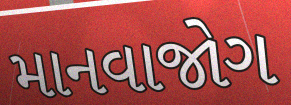
માનવાજોગ